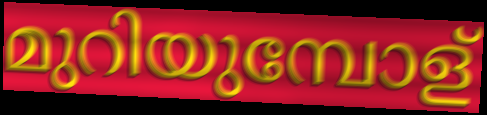
മുറിയുമ്പോള്